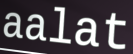
aalat